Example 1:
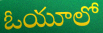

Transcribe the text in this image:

ఓయూలో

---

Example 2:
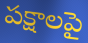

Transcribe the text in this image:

పక్షాలపై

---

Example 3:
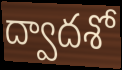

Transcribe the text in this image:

ద్వాదశో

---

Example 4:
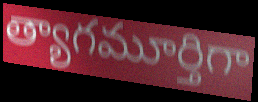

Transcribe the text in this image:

త్యాగమూర్తిగా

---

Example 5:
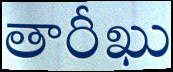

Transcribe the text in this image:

తారీఖు